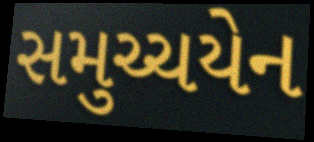
સમુચ્ચયેન